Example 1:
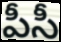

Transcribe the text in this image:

పీసీ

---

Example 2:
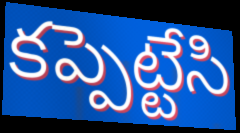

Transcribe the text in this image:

కప్పెట్టేసి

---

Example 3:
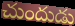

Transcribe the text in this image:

చుందుడు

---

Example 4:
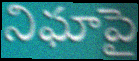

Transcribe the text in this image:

నిఘాపై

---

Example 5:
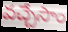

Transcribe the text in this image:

వచ్చేసాం